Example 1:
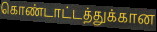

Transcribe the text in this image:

கொண்டாட்டத்துக்கான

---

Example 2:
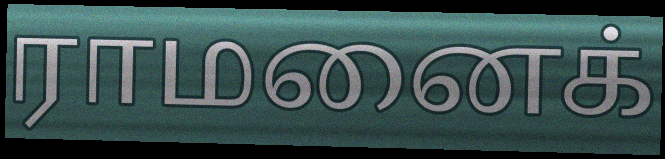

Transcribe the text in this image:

ராமனைக்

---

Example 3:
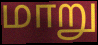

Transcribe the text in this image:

மாறு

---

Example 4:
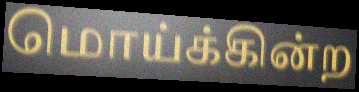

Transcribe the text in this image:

மொய்க்கின்ற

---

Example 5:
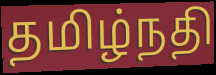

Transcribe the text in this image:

தமிழ்நதி